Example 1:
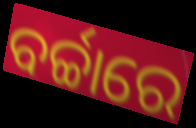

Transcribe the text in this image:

ବର୍ଚ୍ଚାରେ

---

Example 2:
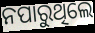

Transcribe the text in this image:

ନପାରୁଥିଲେ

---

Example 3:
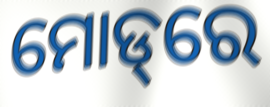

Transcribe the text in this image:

ମୋଡ୍‌ରେ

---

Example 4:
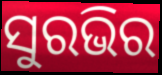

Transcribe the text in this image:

ସୁରଭିର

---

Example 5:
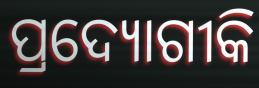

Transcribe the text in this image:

ପ୍ରଦ୍ୟୋଗୀକି